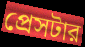
প্রেসটার